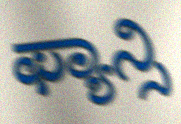
ಫ್ಯಾನ್ಸಿ